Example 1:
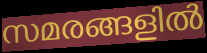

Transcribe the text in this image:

സമരങ്ങളിൽ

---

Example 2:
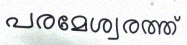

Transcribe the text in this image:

പരമേശ്വരത്ത്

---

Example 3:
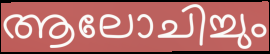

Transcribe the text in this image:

ആലോചിച്ചും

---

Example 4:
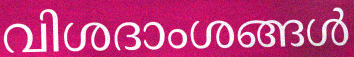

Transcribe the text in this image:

വിശദാംശങ്ങൾ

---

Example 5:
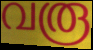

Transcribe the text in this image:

വരൂ